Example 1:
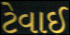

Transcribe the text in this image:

ટેવાઈ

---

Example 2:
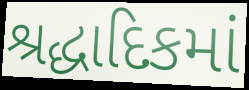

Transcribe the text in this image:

શ્રદ્ધાદિકમાં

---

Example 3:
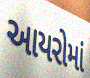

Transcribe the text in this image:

આયરોમાં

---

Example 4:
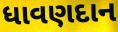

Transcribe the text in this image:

ધાવણદાન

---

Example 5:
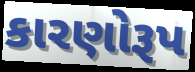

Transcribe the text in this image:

કારણોરૂપ